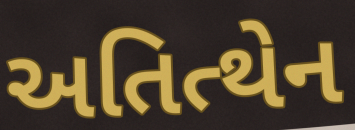
અતિત્થેન